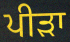
ਪੀੜਾ